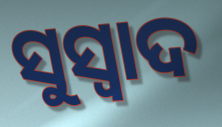
ସୁସ୍ୱାଦ